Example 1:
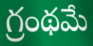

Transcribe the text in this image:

గ్రంథమే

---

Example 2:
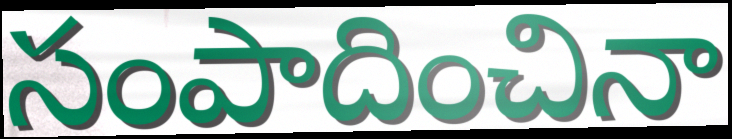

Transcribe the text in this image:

సంపాదించినా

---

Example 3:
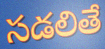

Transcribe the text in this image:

సడలితే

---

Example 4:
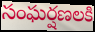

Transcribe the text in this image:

సంఘర్షణలకి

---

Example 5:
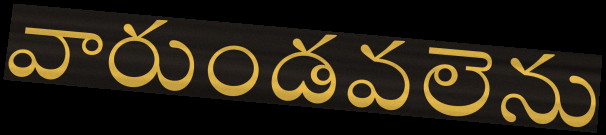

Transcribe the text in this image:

వారుండవలెను